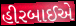
હીરબાઈએ